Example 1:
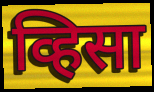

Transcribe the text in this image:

व्हिसा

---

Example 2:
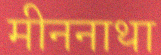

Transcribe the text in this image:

मीननाथा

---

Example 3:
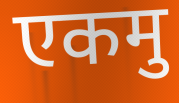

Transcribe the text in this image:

एकमु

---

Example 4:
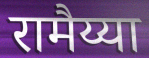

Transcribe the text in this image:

रामैय्या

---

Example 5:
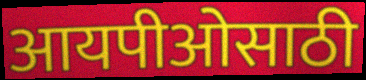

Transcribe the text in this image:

आयपीओसाठी